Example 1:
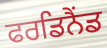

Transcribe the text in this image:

ਫਰਡਿਨੈਂਡ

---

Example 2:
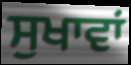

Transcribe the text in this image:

ਸੁਖਾਵਾਂ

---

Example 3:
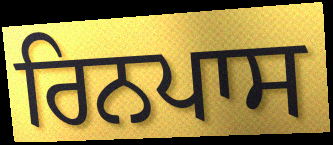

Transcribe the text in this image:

ਰਿਨਪਾਸ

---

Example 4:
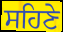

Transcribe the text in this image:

ਸਹਿਣੇ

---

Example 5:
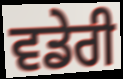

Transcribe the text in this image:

ਵਡੇਰੀ